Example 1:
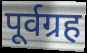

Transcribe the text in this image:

पूर्वग्रह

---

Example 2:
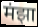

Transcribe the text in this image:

मंझा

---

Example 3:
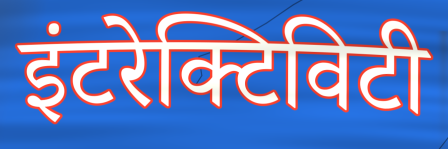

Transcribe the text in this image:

इंटरेक्टिविटी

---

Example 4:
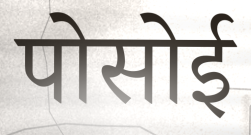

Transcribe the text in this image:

पोसोई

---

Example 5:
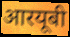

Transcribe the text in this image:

आरयूबी